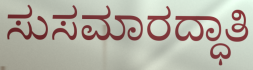
ಸುಸಮಾರದ್ಧಾತಿ